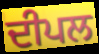
ਦੀਪਲ